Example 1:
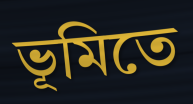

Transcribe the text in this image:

ভূমিতে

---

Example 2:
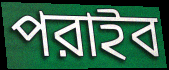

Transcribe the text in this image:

পরাইব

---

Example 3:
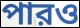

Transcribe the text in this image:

পারও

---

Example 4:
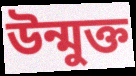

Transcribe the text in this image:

উন্মুক্ত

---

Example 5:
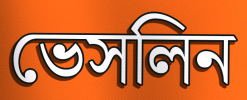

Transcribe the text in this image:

ভেসলিন